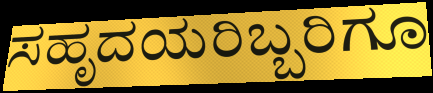
ಸಹೃದಯರಿಬ್ಬರಿಗೂ